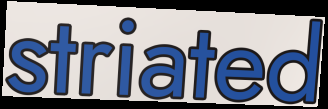
striated